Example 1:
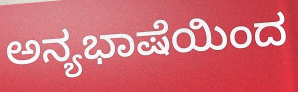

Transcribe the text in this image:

ಅನ್ಯಭಾಷೆಯಿಂದ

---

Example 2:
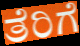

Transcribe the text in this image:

ತೆರಿಗೆ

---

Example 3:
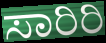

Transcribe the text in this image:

ಸಾರಿರಿ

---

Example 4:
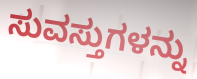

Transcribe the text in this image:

ಸುವಸ್ತುಗಳನ್ನು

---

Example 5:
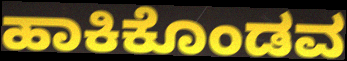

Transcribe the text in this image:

ಹಾಕಿಕೊಂಡವ